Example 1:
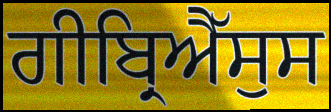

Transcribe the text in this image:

ਗੀਬ੍ਰਿਐੱਸੁਸ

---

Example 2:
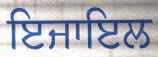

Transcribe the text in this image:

ਇਜਾਇਲ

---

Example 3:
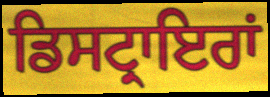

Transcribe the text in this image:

ਡਿਸਟ੍ਰਾਇਰਾਂ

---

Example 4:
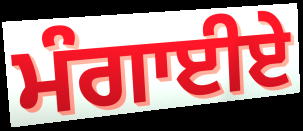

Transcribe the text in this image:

ਮੰਗਾਈਏ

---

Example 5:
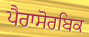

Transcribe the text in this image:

ਪੈਰਾਸੋਰਬਿਕ